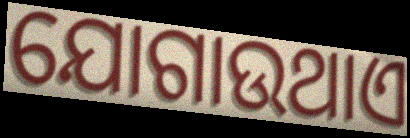
ଯୋଗାଉଥାଏ